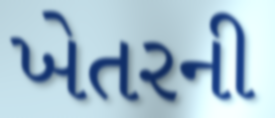
ખેતરની